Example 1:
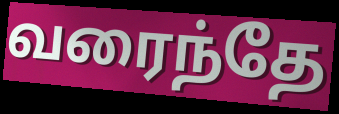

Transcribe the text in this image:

வரைந்தே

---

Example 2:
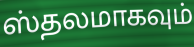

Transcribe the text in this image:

ஸ்தலமாகவும்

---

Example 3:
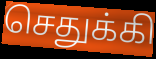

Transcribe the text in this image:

செதுக்கி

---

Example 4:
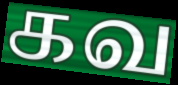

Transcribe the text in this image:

கவ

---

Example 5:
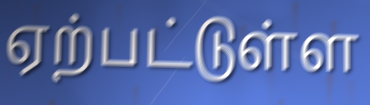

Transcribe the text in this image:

ஏற்பட்டுள்ள